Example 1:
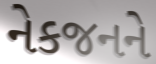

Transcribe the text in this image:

નેકજનને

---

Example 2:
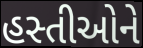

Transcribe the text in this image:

હસ્તીઓને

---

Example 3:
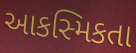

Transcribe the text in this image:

આકસ્મિકતા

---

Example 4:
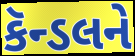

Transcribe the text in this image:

કૅન્ડલને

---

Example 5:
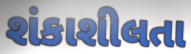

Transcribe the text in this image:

શંકાશીલતા